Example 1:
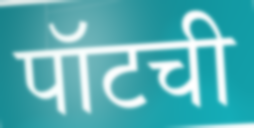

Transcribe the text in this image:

पॉटची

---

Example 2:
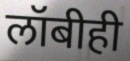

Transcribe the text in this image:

लॉबीही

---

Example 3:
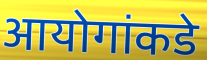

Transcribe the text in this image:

आयोगांकडे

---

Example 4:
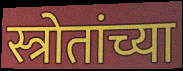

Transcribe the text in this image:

स्त्रोतांच्या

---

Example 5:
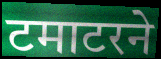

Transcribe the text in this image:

टमाटरने